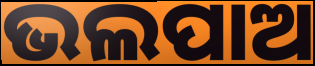
ଭଲପାଅ